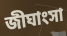
জীঘাংসা